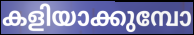
കളിയാക്കുമ്പോ